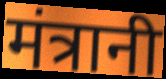
मंत्रानी